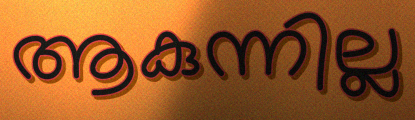
ആകുന്നില്ല